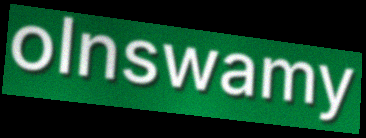
olnswamy